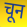
चून